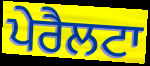
ਪੇਰੈਲਟਾ